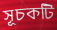
সূচকটি